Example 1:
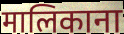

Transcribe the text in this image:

मालिकाना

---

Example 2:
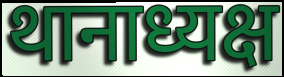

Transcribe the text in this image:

थानाध्यक्ष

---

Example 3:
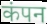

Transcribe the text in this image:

कंपन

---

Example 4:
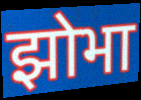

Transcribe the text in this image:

झोभा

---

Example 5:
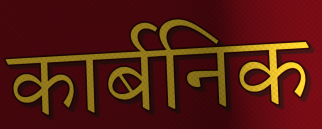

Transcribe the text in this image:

कार्बनिक